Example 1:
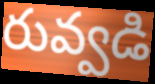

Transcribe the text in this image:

రువ్వడి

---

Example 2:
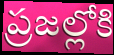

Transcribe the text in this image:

ప్రజల్లోకి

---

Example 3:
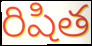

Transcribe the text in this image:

రిషిత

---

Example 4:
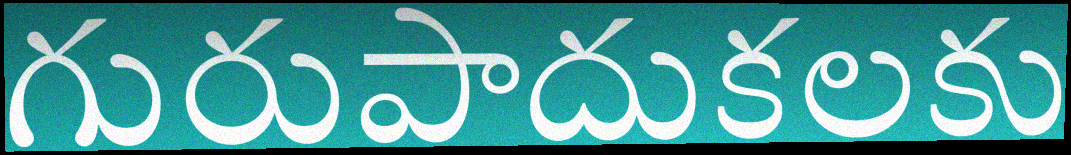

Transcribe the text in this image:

గురుపాదుకలకు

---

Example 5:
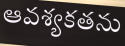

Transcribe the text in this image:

ఆవశ్యకతను